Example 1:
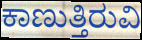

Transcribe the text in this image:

ಕಾಣುತ್ತಿರುವಿ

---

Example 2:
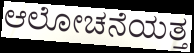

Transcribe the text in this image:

ಆಲೋಚನೆಯತ್ತ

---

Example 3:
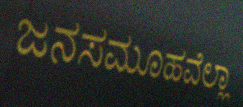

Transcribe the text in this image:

ಜನಸಮೂಹವೆಲ್ಲಾ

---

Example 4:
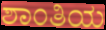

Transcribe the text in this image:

ಶಾಂತಿಯ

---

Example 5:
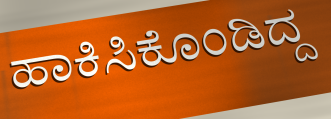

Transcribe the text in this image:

ಹಾಕಿಸಿಕೊಂಡಿದ್ದ